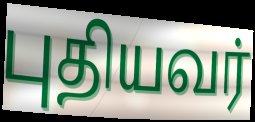
புதியவர்